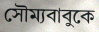
সৌম্যবাবুকে